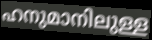
ഹനുമാനിലുള്ള